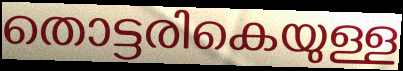
തൊട്ടരികെയുള്ള